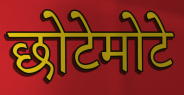
छोटेमोटे